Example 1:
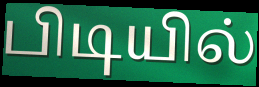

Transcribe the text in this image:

பிடியில்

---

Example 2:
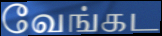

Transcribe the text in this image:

வேங்கட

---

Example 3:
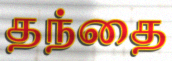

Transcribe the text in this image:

தந்தை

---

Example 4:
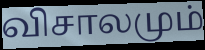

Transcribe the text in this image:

விசாலமும்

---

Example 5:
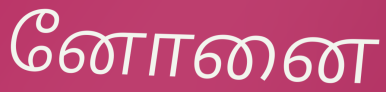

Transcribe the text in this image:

னோனை